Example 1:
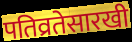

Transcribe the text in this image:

पतिव्रतेसारखी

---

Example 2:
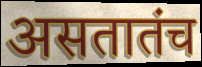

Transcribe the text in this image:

असतातंच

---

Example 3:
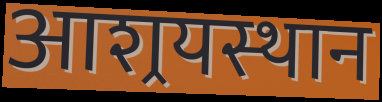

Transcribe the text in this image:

आश्रयस्थान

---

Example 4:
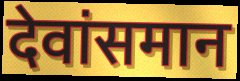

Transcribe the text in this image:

देवांसमान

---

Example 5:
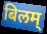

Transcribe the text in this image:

बिलम्